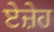
ਏਜ਼ੇਹ